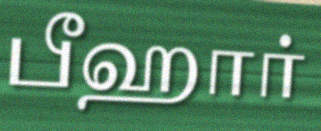
பீஹார்